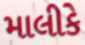
માલીકે